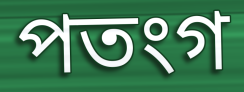
পতংগ